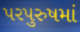
પરપુરુષમાં